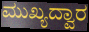
ಮುಖ್ಯದ್ವಾರ